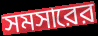
সমসারের